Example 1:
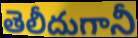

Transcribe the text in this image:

తెలీదుగానీ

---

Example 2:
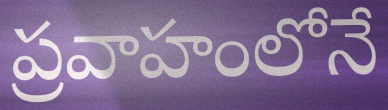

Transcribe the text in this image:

ప్రవాహంలోనే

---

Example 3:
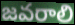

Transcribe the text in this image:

జవరాలి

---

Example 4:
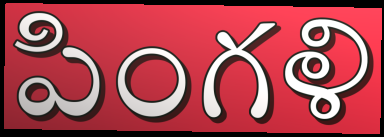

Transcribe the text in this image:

పింగళి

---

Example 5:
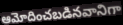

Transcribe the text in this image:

ఆమోదించబడినవానిగా